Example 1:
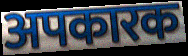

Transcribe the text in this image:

अपकारक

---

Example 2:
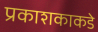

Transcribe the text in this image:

प्रकाशकाकडे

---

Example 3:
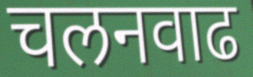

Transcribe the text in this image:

चलनवाढ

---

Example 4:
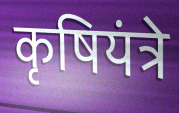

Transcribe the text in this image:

कृषियंत्रे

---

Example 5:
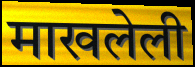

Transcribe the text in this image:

माखलेली